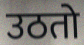
उठतो